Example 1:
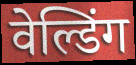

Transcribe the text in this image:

वेल्डिंग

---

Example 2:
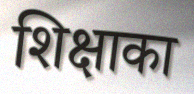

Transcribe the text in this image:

शिक्षाका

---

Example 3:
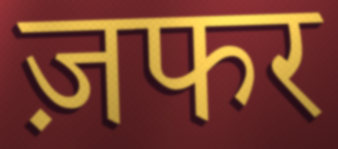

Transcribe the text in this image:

ज़फर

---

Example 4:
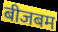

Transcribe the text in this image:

बीजबम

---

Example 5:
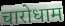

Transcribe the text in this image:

चारोधाम